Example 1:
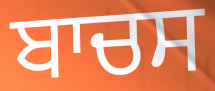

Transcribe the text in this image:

ਬਾਚਸ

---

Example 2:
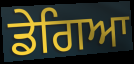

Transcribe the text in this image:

ਡੇਗਿਆ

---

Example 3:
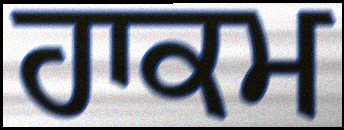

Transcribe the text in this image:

ਹਾਕਮ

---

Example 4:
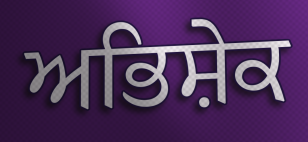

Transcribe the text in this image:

ਅਭਿਸ਼ੇਕ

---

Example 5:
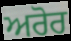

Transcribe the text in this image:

ਅਰੋਰ